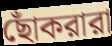
ছোঁকরারা